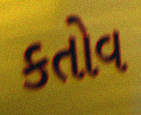
કતોવ